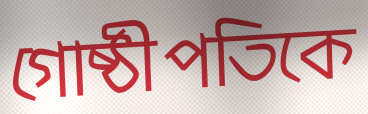
গোষ্ঠীপতিকে